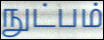
நுட்பம்